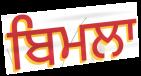
ਬਿਮਲਾ